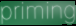
priming